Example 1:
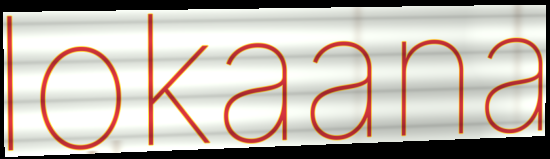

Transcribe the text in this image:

lokaana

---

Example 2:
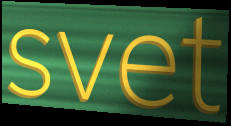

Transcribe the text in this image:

svet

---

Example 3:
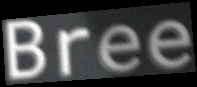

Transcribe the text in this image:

Bree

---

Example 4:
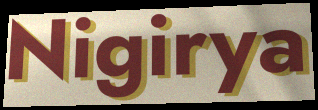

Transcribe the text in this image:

Nigirya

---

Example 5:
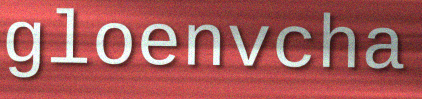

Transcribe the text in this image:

gloenvcha